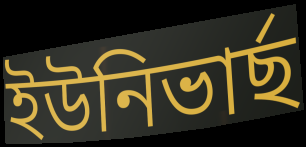
ইউনিভাৰ্ছ